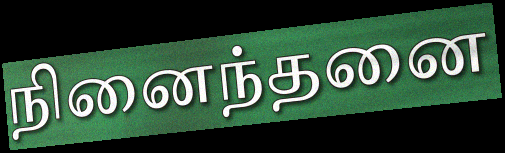
நினைந்தனை